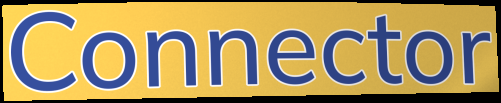
Connector